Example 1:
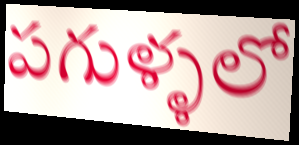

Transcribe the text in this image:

పగుళ్ళలో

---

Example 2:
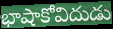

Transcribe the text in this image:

భాషాకోవిదుడు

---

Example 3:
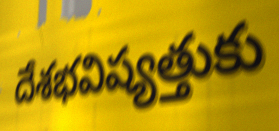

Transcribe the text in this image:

దేశభవిష్యత్తుకు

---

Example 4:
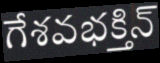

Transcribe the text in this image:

గేశవభక్తిన్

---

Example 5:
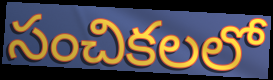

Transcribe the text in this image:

సంచికలలో